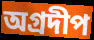
অগ্রদীপ